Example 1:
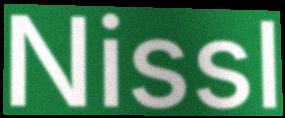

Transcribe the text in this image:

Nissl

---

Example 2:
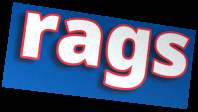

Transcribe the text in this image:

rags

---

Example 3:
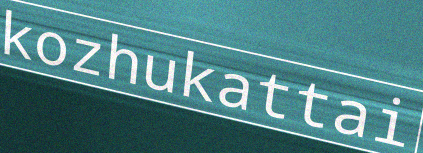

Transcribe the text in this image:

kozhukattai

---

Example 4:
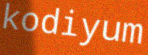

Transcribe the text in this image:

kodiyum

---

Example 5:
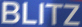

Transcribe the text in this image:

BLITZ